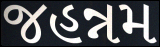
જહન્નમ